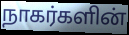
நாகர்களின்